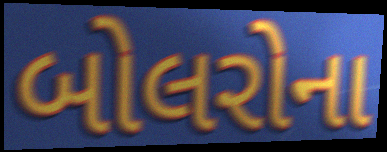
બોલરોના